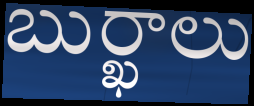
బుర్ఖాలు